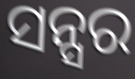
ସନ୍ସର